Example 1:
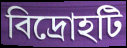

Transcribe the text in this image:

বিদ্রোহটি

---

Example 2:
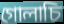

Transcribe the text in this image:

গোলাচি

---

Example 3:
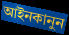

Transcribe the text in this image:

আইনকানুন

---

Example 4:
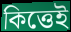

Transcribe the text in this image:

কিত্তেই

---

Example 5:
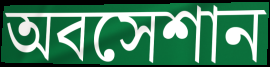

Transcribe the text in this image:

অবসেশান